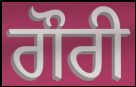
ਗੌਰੀ